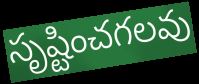
సృష్టించగలవు